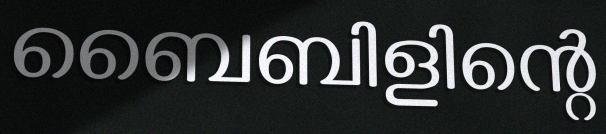
ബൈബിളിന്റെ